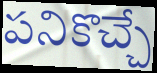
పనికొచ్చే